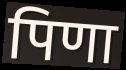
पिणा